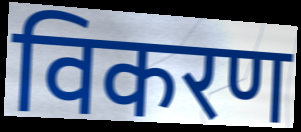
विकरण